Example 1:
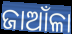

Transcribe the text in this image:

ଜାଆଁଳା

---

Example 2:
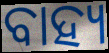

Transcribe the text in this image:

ବାହ୍ୟ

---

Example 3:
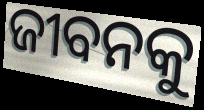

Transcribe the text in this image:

ଜୀବନକୁ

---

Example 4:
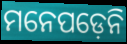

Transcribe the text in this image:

ମନେପଡ଼େନି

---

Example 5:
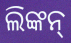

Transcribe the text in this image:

ଲିଙ୍କନ୍